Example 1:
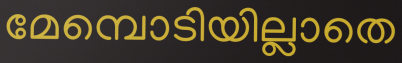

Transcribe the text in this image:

മേമ്പൊടിയില്ലാതെ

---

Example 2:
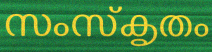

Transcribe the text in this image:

സംസ്‌കൃതം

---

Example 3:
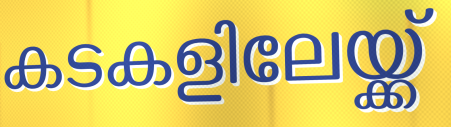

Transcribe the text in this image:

കടകളിലേയ്ക്ക്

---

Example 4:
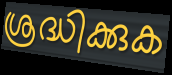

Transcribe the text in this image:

ശ്രദ്ധിക്കുക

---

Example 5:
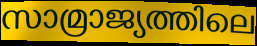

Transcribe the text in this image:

സാമ്രാജ്യത്തിലെ